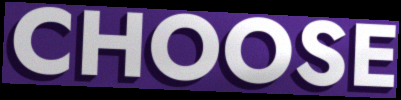
CHOOSE